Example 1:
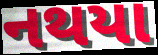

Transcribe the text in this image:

નથયા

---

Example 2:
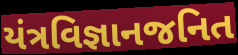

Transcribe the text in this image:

યંત્રવિજ્ઞાનજનિત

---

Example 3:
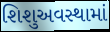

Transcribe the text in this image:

શિશુઅવસ્થામાં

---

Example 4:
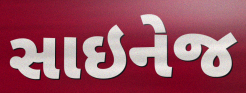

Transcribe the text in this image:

સાઇનેજ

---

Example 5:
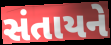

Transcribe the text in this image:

સંતાયને